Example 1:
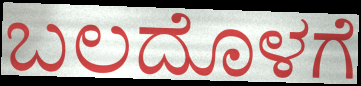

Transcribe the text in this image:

ಬಲದೊಳಗೆ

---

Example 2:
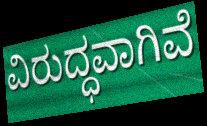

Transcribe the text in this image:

ವಿರುದ್ಧವಾಗಿವೆ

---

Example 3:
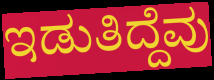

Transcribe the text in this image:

ಇಡುತಿದ್ದೆವು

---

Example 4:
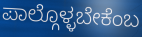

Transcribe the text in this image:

ಪಾಲ್ಗೊಳ್ಳಬೇಕೆಂಬ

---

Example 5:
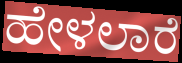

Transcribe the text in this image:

ಹೇಳಲಾರೆ